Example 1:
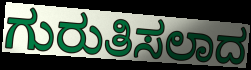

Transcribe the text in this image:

ಗುರುತಿಸಲಾದ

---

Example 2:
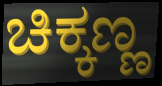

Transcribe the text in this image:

ಚಿಕ್ಕಣ್ಣ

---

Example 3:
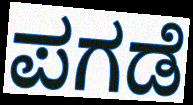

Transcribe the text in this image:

ಪಗಡೆ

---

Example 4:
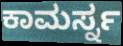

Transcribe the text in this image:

ಕಾಮರ್ಸ್ನ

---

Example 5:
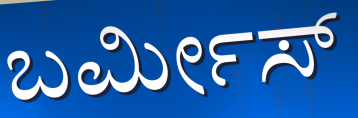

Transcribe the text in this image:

ಬರ್ಮೀಸ್